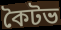
কৈটভ